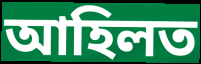
আহিলত